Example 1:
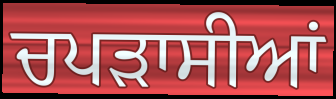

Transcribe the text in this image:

ਚਪੜਾਸੀਆਂ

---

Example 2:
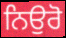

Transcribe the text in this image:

ਨਿਉਰੋ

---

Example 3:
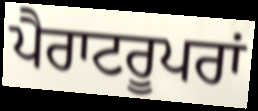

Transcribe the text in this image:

ਪੈਰਾਟਰੂਪਰਾਂ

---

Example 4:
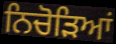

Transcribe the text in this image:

ਨਿਚੋੜਿਆਂ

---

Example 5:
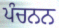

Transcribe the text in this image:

ਪੰਚਨਨ